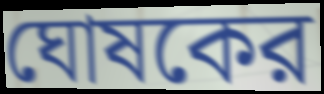
ঘোষকের